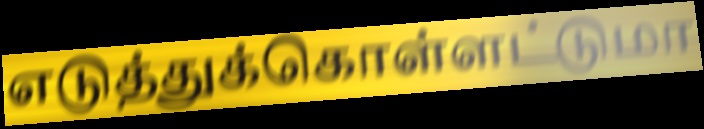
எடுத்துக்கொள்ளட்டுமா